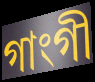
গাংগী